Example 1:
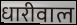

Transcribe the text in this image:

धारीवाल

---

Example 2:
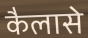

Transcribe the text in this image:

कैलासे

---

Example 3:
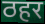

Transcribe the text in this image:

ठहर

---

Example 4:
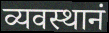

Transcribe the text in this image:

व्यवस्थानं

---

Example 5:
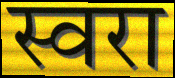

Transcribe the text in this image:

स्वरा